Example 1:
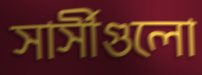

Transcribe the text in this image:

সার্সীগুলো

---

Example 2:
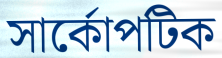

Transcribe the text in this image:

সার্কোপটিক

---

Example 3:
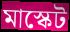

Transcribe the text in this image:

মাস্কেট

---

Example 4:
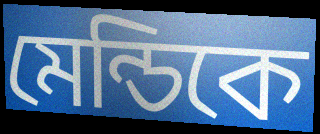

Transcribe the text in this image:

মেন্ডিকে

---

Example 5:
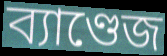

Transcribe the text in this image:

ব্যাণ্ডেজ